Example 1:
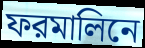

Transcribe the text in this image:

ফরমালিনে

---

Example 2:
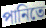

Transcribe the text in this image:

পানিতে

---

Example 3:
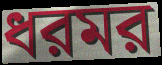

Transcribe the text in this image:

ধরমর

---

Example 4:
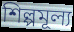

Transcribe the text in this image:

শিল্পমূল্য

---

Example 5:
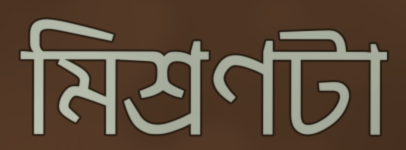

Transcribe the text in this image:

মিশ্রণটা